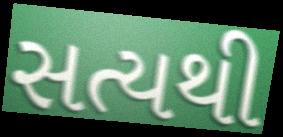
સત્યથી